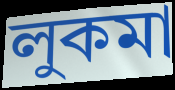
লুকমা